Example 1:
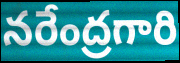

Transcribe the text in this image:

నరేంద్రగారి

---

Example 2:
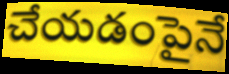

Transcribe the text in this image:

చేయడంపైనే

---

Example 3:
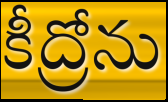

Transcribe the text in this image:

కీద్రోను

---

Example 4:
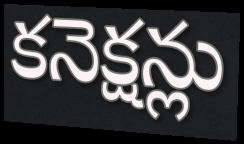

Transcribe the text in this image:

కనెక్షన్లు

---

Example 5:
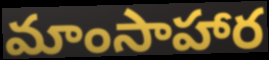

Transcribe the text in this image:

మాంసాహార